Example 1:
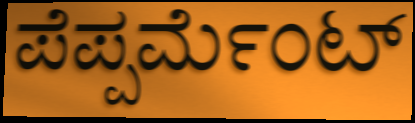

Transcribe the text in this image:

ಪೆಪ್ಪರ್ಮೆಂಟ್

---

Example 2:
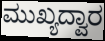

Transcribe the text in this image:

ಮುಖ್ಯದ್ವಾರ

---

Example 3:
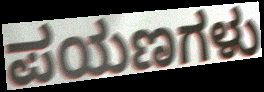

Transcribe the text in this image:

ಪಯಣಗಳು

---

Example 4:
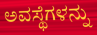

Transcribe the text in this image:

ಅವಸ್ಥೆಗಳನ್ನು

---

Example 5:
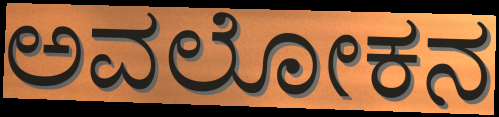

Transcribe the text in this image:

ಅವಲೋಕನ